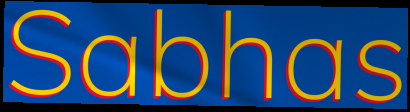
Sabhas